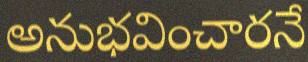
అనుభవించారనే